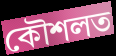
কৌশলত